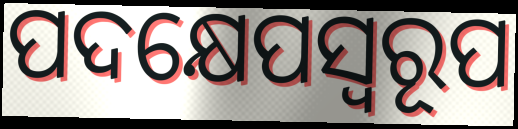
ପଦକ୍ଷେପସ୍ଵରୂପ